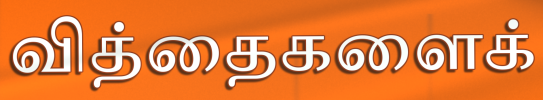
வித்தைகளைக்